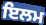
ਇਲਮ